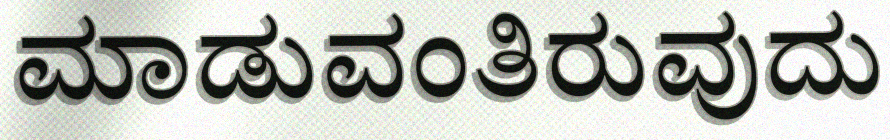
ಮಾಡುವಂತಿರುವುದು